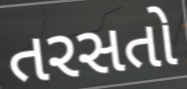
તરસતો